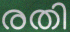
രതി